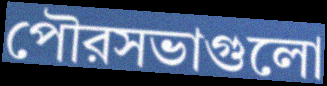
পৌরসভাগুলো